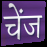
चेंज